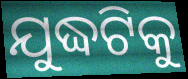
ଯୁଦ୍ଧଟିକୁ